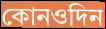
কোনওদিন